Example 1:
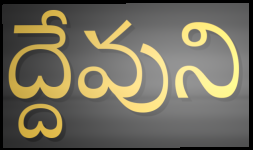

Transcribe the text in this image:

ద్దేవుని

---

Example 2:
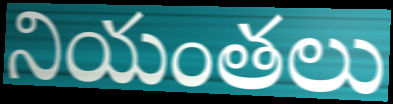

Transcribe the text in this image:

నియంతలు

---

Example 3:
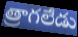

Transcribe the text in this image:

త్రాగలేడు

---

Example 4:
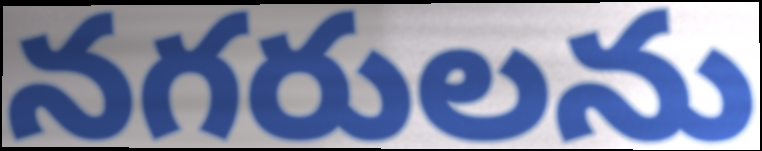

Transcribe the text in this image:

నగరులను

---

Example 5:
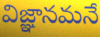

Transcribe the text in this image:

విజ్ఞానమనే